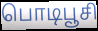
பொடிபூசி